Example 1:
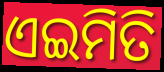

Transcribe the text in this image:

ଏଇମିତି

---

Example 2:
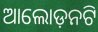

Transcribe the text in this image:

ଆଲୋଡ଼ନଟି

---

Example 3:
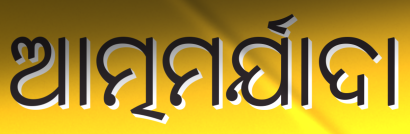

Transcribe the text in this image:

ଆତ୍ମମର୍ଯାଦା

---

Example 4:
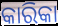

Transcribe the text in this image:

କାରିକା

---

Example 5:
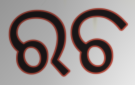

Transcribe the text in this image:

ରଚ